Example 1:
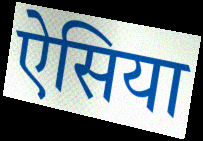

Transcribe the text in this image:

ऐसिया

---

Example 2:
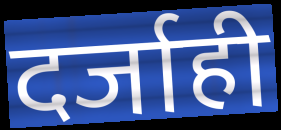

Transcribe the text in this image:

दर्जाही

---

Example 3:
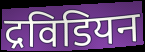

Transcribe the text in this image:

द्रविडियन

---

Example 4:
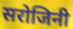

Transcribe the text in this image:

सरोजिनी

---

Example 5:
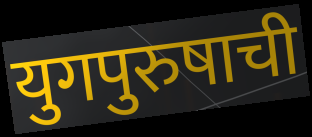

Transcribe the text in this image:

युगपुरुषाची